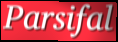
Parsifal